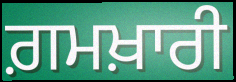
ਗ਼ਮਖ਼ਾਰੀ